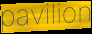
pavilion